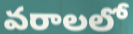
వరాలలో